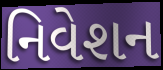
નિવેશન